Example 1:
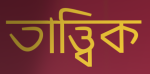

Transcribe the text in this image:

তাত্ত্বিক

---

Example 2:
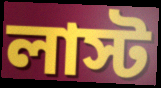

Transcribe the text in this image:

লাস্ট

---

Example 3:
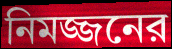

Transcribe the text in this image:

নিমজ্জনের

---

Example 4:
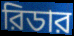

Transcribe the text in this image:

রিডার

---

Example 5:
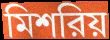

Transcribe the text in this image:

মিশরিয়